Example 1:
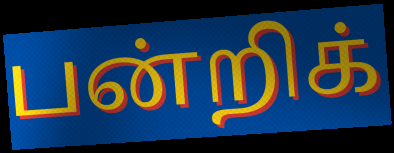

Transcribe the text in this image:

பன்றிக்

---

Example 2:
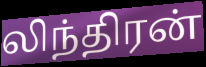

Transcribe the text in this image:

லிந்திரன்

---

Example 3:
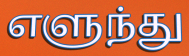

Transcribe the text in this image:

எளுந்து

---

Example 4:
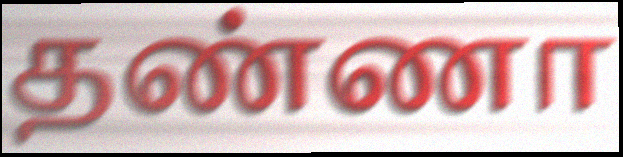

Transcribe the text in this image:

தண்ணா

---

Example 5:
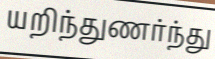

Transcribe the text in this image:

யறிந்துணர்ந்து